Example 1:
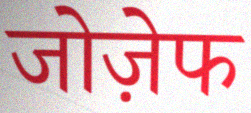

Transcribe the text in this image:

जोज़ेफ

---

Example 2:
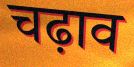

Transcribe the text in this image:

चढ़ाव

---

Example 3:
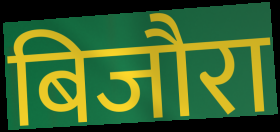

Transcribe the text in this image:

बिजौरा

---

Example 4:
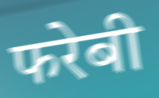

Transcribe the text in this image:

फरेबी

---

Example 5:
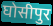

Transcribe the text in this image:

घोसीपुर